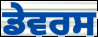
ਡੇਵਰਸ